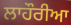
ਲਾਹੌਰੀਆ